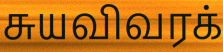
சுயவிவரக்